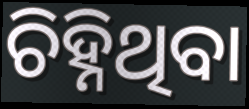
ଚିହ୍ନିଥିବା